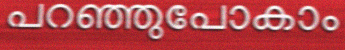
പറഞ്ഞുപോകാം